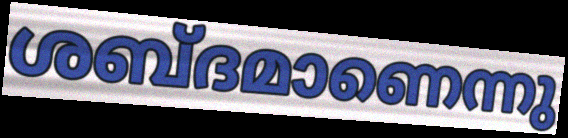
ശബ്ദമാണെന്നു